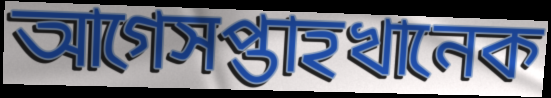
আগেসপ্তাহখানেক